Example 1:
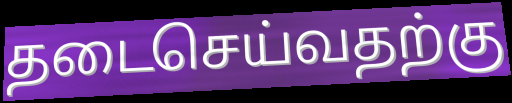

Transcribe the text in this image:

தடைசெய்வதற்கு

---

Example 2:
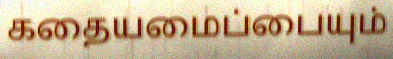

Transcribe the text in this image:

கதையமைப்பையும்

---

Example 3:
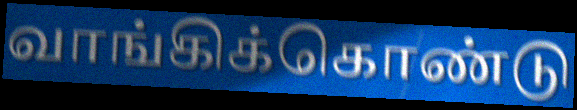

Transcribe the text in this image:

வாங்கிக்கொண்டு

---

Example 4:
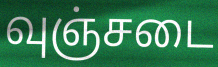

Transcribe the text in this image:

வுஞ்சடை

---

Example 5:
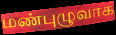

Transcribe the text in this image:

மண்புழுவாக